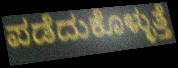
ಪಡೆದುಕೊಳ್ಳುತ್ತೆ